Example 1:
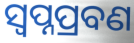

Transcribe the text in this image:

ସ୍ଵପ୍ନପ୍ରବଣ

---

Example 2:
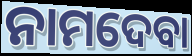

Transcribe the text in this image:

ନାମଦେବା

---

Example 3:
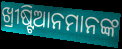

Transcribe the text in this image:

ଖ୍ରୀଷ୍ଟିଆନମାନଙ୍କ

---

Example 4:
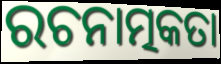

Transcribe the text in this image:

ରଚନାତ୍ମକତା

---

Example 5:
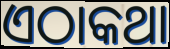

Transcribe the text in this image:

ଏଠାକଥା